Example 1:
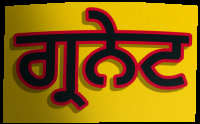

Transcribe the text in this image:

ਗ੍ਰਨੇਟ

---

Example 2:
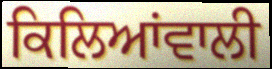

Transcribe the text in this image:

ਕਿਲਿਆਂਵਾਲੀ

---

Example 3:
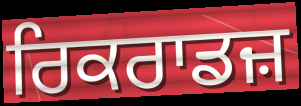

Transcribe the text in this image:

ਰਿਕਰਾਡਜ਼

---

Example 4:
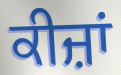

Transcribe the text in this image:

ਕੀਜ਼ਾਂ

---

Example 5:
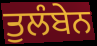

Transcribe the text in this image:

ਤੁਲੰਬੇਨ